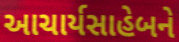
આચાર્યસાહેબને